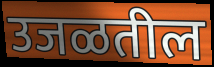
उजळतील